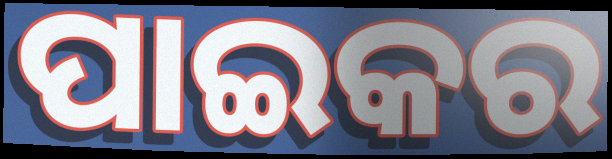
ପାଇକର